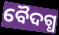
ବୈଦଗ୍ଧ